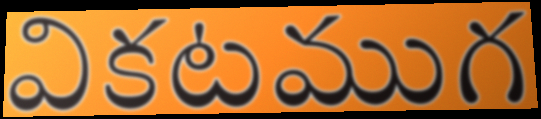
వికటముగ